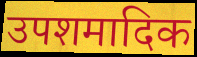
उपशमादिक